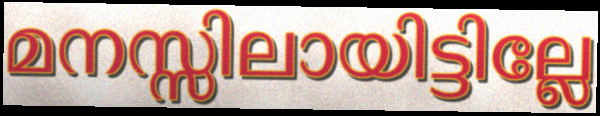
മനസ്സിലായിട്ടില്ലേ